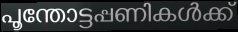
പൂന്തോട്ടപ്പണികൾക്ക്